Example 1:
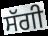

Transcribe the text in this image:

ਸੱਗੀ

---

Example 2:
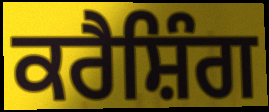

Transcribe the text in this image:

ਕਰੈਸ਼ਿੰਗ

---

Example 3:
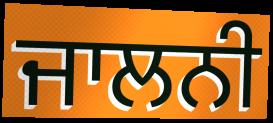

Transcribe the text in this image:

ਜਾਲਨੀ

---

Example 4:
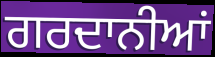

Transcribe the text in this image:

ਗਰਦਾਨੀਆਂ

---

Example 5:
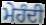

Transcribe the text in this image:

ਮੇਹੰਦੀ